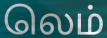
லெம்